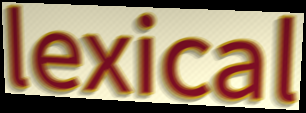
lexical